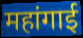
महांगाई